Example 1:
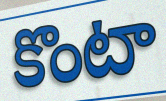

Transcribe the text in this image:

కొంటా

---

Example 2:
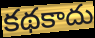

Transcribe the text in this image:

కథకాదు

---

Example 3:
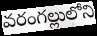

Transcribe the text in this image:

వరంగల్లులోని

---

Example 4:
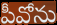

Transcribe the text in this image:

పీవోను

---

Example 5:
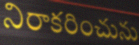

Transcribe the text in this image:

నిరాకరించును